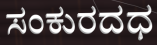
ಸಂಕುರದಧ